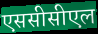
एससीसीएल